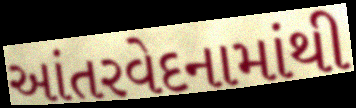
આંતરવેદનામાંથી